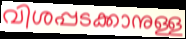
വിശപ്പടക്കാനുള്ള